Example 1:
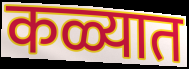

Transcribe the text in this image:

कळ्यात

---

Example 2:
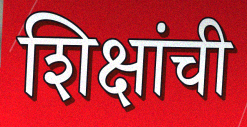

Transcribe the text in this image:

शिक्षांची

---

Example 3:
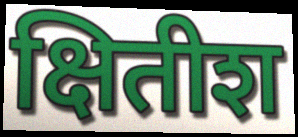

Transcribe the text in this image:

क्षितीश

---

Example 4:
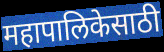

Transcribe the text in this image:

महापालिकेसाठी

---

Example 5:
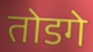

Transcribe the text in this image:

तोडगे